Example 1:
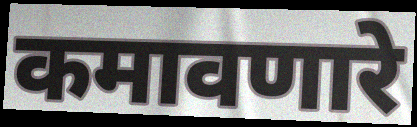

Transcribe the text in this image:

कमावणारे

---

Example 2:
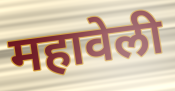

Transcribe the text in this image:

महावेली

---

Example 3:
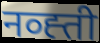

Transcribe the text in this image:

नव्ह्ती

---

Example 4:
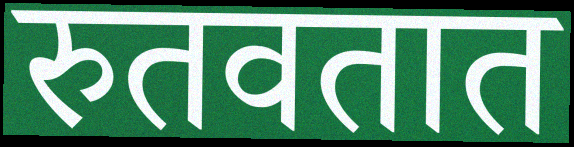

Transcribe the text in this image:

रुतवतात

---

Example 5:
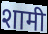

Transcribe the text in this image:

शामी